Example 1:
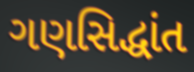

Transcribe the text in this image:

ગણસિદ્ધાંત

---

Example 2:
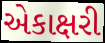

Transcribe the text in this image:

એકાક્ષરી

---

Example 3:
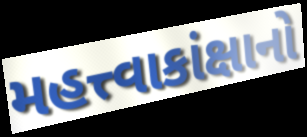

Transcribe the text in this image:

મહત્ત્વાકાંક્ષાનો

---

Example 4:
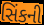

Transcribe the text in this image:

સિંકની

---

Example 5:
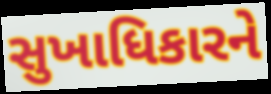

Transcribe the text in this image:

સુખાધિકારને